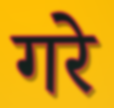
गरे